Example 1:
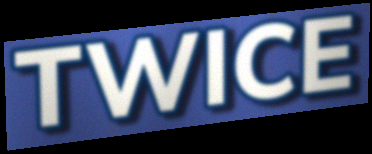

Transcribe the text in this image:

TWICE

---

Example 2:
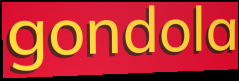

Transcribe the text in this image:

gondola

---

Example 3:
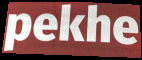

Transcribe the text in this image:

pekhe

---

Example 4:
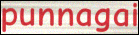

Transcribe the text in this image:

punnagai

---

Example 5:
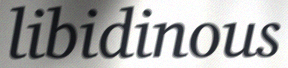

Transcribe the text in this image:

libidinous